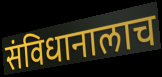
संविधानालाच